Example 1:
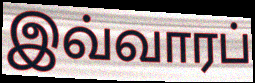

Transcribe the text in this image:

இவ்வாரப்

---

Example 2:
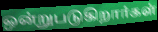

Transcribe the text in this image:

ஒன்றுபடுகிறார்கள்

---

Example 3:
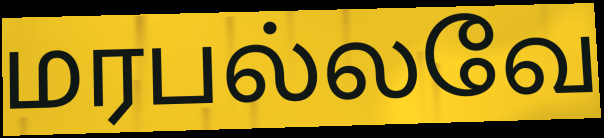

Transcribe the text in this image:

மரபல்லவே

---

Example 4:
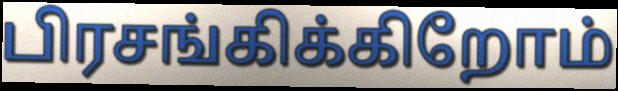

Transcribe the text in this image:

பிரசங்கிக்கிறோம்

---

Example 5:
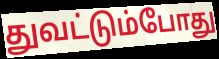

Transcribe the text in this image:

துவட்டும்போது